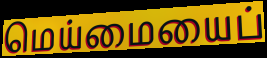
மெய்மையைப்